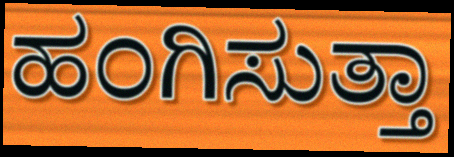
ಹಂಗಿಸುತ್ತಾ